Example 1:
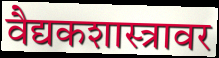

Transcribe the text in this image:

वैद्यकशास्त्रावर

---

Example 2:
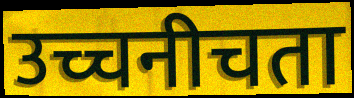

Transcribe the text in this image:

उच्चनीचता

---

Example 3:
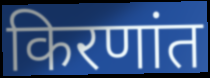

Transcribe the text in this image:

किरणांत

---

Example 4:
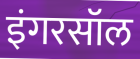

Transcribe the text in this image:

इंगरसॉल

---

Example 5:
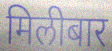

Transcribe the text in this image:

मिलीबार